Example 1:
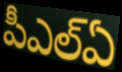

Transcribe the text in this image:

పీఎల్ఏ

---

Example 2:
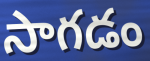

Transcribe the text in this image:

సాగడం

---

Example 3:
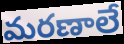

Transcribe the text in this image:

మరణాలే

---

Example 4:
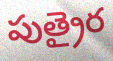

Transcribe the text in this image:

పుత్రైర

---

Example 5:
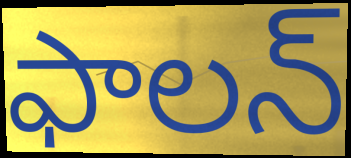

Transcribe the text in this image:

ఫాలన్